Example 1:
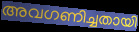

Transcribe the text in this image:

അവഗണിച്ചതായി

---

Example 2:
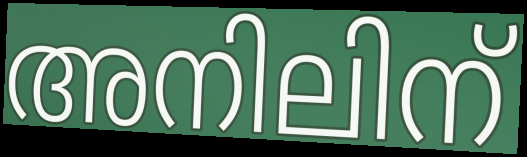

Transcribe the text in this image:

അനിലിന്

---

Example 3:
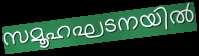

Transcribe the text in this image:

സമൂഹഘടനയിൽ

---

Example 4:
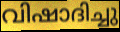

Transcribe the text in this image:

വിഷാദിച്ചു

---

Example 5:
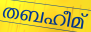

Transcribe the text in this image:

തബഹീമ്